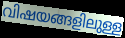
വിഷയങ്ങളിലുള്ള